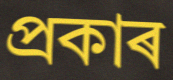
প্ৰকাৰ